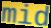
mid